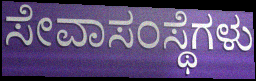
ಸೇವಾಸಂಸ್ಥೆಗಳು